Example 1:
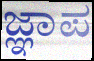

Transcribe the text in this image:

ಜ್ಞಾಪ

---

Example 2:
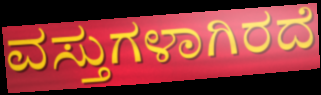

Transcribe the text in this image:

ವಸ್ತುಗಳಾಗಿರದೆ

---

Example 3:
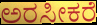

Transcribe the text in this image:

ಅರಸೀಕರೆ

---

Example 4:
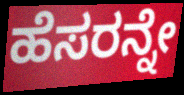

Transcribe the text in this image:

ಹೆಸರನ್ನೇ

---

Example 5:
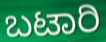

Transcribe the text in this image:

ಬಟಾರಿ